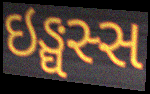
ઇઙ્ઘસ્સ